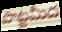
పొట్టమీద